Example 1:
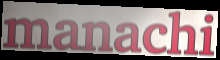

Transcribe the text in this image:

manachi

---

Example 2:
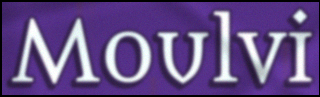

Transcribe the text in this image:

Moulvi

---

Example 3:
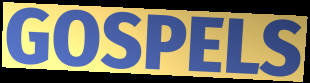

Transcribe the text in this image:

GOSPELS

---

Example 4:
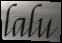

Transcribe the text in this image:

lalu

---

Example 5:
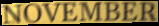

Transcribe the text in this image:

NOVEMBER